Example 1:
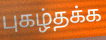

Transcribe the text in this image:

புகழ்தக்க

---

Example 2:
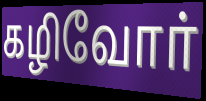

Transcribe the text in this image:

கழிவோர்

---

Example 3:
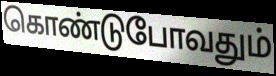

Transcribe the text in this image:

கொண்டுபோவதும்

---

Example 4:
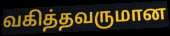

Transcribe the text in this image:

வகித்தவருமான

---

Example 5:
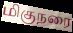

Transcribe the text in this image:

மிகுநரை